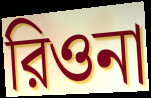
রিওনা